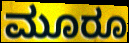
ಮೂರೂ